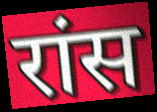
रांस